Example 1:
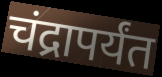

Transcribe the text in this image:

चंद्रापर्यंत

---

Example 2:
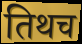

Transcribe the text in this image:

तिथच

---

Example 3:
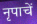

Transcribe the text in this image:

नृपाचें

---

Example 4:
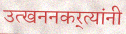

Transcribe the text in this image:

उत्खननकर्त्यांनी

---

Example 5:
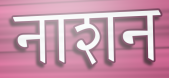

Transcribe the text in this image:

नाशन